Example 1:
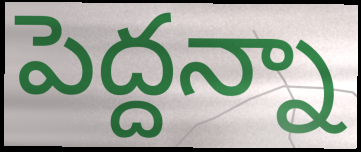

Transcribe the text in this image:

పెద్దన్నా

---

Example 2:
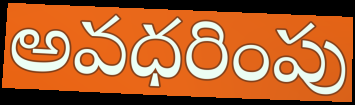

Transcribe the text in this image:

అవధరింపు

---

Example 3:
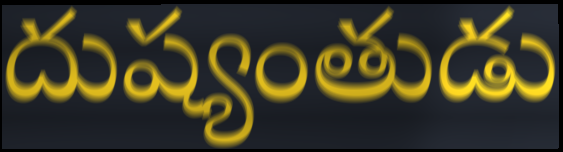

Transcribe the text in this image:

దుష్యంతుడు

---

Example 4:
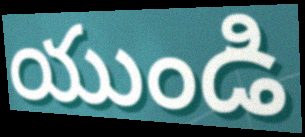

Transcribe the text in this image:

యుండి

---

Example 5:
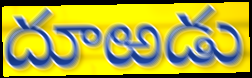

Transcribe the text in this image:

దూఱడు